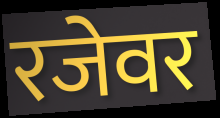
रजेवर